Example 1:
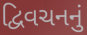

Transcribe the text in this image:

દ્વિવચનનું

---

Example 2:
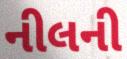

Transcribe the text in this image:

નીલની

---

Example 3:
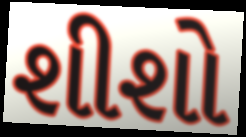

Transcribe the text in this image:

શીશો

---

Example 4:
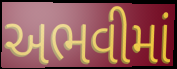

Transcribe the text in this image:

અભવીમાં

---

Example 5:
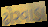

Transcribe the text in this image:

ઢોરવાડા